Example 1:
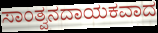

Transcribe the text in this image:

ಸಾಂತ್ವನದಾಯಕವಾದ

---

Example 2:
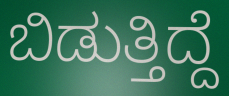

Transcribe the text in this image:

ಬಿಡುತ್ತಿದ್ದೆ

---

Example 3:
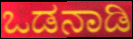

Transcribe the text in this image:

ಒಡನಾಡಿ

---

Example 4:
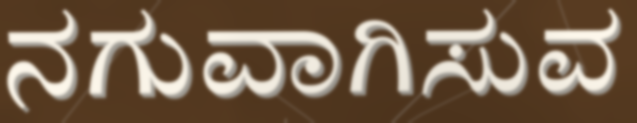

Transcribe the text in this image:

ನಗುವಾಗಿಸುವ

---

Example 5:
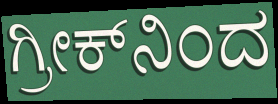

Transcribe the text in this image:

ಗ್ರೀಕ್‌ನಿಂದ